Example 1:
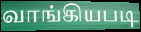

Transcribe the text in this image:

வாங்கியபடி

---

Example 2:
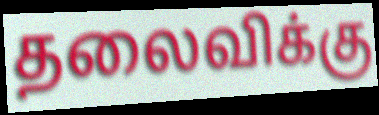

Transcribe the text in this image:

தலைவிக்கு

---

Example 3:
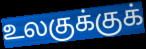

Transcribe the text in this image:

உலகுக்குக்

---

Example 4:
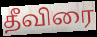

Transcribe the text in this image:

தீவிரை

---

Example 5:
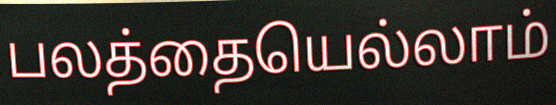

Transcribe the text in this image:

பலத்தையெல்லாம்